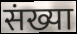
संख्या